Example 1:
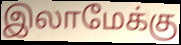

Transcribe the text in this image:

இலாமேக்கு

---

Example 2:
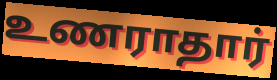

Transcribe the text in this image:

உணராதார்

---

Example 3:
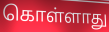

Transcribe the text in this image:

கொள்ளாது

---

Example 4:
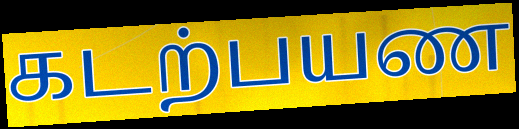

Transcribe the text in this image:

கடற்பயண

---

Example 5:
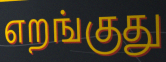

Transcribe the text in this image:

எறங்குது